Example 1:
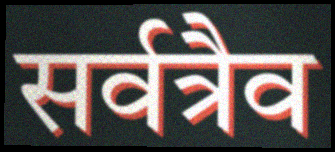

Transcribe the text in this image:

सर्वत्रैव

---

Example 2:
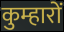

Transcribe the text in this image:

कुम्हारों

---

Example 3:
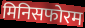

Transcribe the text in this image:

मिनिसफोरम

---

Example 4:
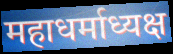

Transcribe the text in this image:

महाधर्माध्यक्ष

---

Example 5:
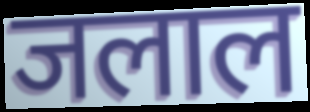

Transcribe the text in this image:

जलाल